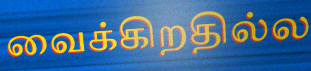
வைக்கிறதில்ல